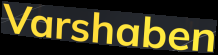
Varshaben